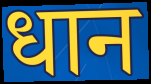
धान